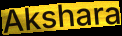
Akshara